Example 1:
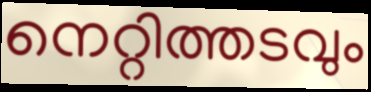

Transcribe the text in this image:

നെറ്റിത്തടവും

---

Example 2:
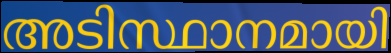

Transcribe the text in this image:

അടിസ്ഥാനമായി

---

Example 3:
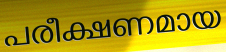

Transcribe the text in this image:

പരീക്ഷണമായ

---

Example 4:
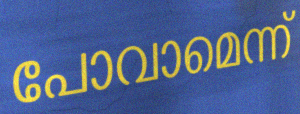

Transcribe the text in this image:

പോവാമെന്ന്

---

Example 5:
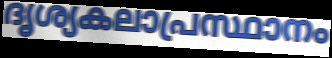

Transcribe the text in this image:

ദൃശ്യകലാപ്രസ്ഥാനം